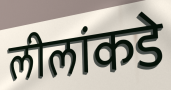
लीलांकडे